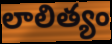
లాలిత్యం